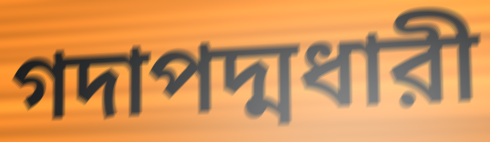
গদাপদ্মধারী